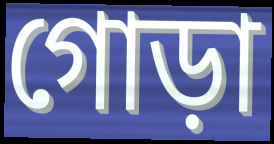
গোড়া